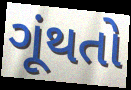
ગૂંથતો